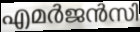
എമർജൻസി